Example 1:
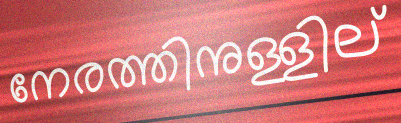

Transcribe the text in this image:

നേരത്തിനുള്ളില്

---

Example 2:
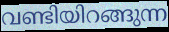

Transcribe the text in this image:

വണ്ടിയിറങ്ങുന്ന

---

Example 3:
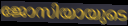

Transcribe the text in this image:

ജോസിയായുടെ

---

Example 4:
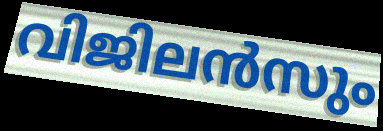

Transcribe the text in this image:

വിജിലൻസും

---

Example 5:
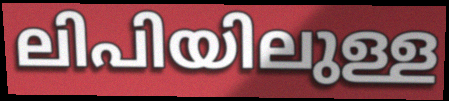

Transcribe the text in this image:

ലിപിയിലുള്ള